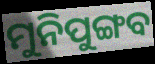
ମୁନିପୁଙ୍ଗବ